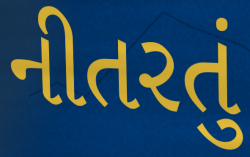
નીતરતું